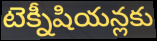
టెక్నీషియన్లకు